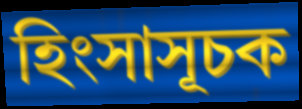
হিংসাসূচক